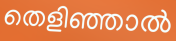
തെളിഞ്ഞാൽ